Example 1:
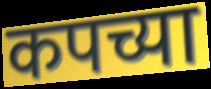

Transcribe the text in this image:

कपच्या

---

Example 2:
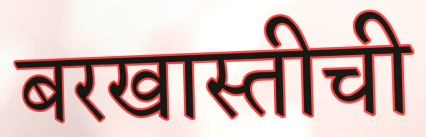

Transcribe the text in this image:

बरखास्तीची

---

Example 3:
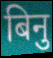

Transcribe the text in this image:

बिनु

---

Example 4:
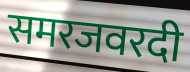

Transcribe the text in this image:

समरजवरदी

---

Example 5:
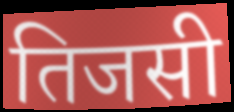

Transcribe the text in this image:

तिजसी